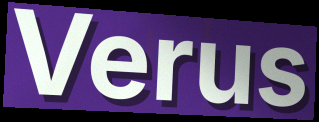
Verus